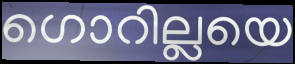
ഗൊറില്ലയെ